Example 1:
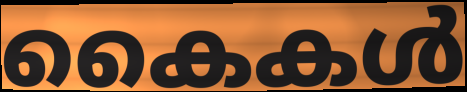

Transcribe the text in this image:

കൈകൾ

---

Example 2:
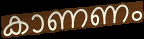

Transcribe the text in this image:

കാണണം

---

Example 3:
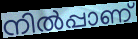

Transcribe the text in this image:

നിൽപ്പാണ്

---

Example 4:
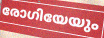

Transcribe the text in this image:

രോഗിയേയും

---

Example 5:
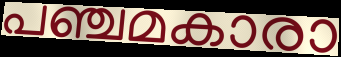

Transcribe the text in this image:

പഞ്ചമകാരാ